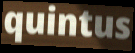
quintus